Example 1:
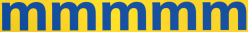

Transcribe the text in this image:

mmmmm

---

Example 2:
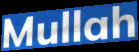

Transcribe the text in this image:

Mullah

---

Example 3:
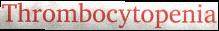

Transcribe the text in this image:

Thrombocytopenia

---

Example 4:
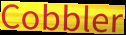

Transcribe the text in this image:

Cobbler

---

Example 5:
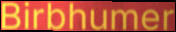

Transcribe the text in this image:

Birbhumer